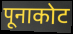
पूनाकोट